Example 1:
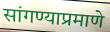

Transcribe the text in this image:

सांगण्याप्रमाणे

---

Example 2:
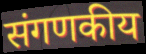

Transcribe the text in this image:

संगणकीय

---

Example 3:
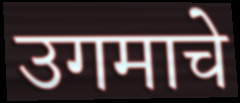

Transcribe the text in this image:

उगमाचे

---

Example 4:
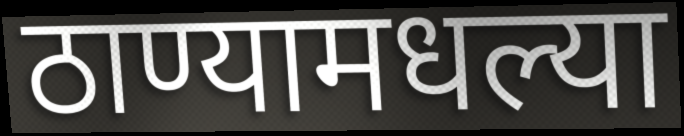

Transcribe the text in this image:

ठाण्यामधल्या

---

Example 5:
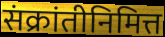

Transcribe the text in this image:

संक्रांतीनिमित्त